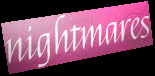
nightmares